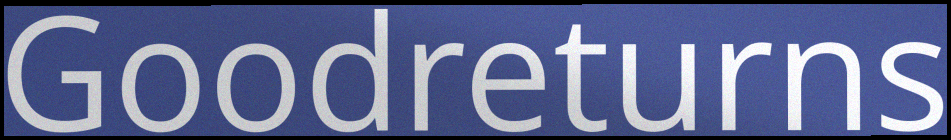
Goodreturns